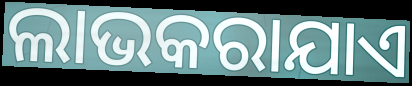
ଲାଭକରାଯାଏ